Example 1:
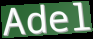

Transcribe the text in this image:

Adel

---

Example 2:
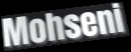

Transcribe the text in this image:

Mohseni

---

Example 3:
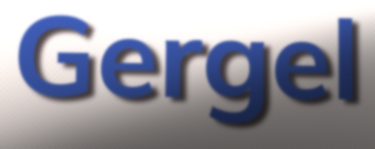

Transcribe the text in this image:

Gergel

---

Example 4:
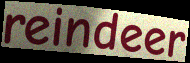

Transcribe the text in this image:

reindeer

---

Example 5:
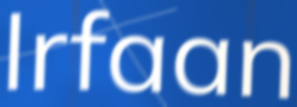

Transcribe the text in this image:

Irfaan